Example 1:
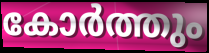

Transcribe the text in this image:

കോർത്തും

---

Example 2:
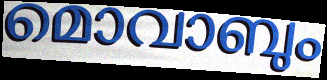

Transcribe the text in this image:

മൊവാബും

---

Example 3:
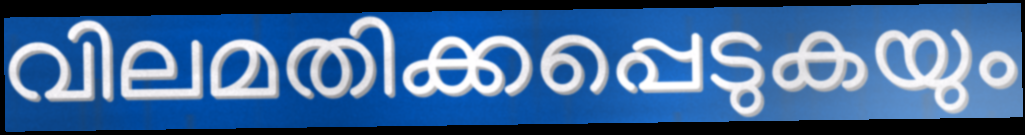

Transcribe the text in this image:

വിലമതിക്കപ്പെടുകയും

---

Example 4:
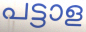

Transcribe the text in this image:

പട്ടാള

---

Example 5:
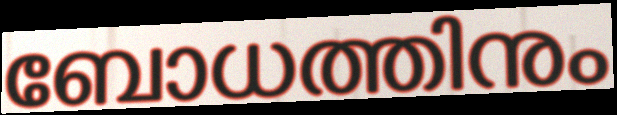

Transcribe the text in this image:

ബോധത്തിനും